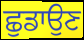
ਛੁਡਾਉਣ